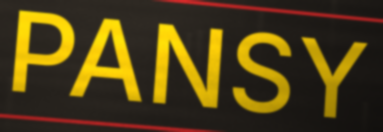
PANSY